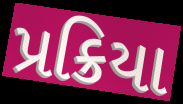
પ્રક્રિયા